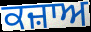
ਕਜ਼ਾਅ